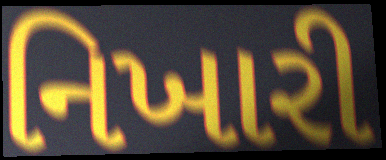
નિખારી